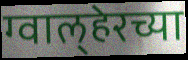
ग्वाल्हेरच्या